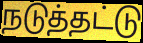
நடுத்தட்டு